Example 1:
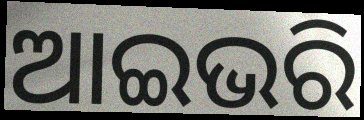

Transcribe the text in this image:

ଆଇଭରି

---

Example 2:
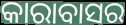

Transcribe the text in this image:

କାରାବାସର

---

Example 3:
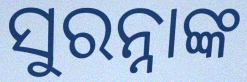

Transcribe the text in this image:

ସୁରନ୍ନାଙ୍କ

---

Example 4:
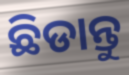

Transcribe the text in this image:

ଛିଡାନ୍ତୁ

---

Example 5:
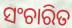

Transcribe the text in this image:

ସଂଚାରିତ